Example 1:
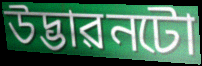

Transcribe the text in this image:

উদ্ভাৱনটো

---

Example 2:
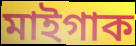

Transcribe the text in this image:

মাইগাক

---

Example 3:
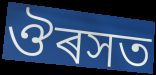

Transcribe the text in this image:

ঔৰসত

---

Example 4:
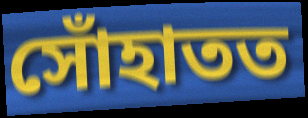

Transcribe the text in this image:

সোঁহাতত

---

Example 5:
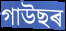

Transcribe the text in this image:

গাউছৰ